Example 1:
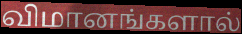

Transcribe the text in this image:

விமானங்களால்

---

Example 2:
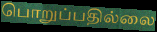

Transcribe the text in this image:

பொறுப்பதில்லை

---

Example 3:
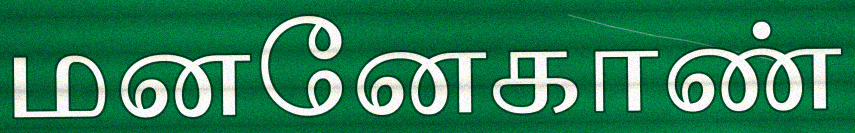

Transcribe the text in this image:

மனனேகாண்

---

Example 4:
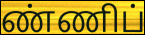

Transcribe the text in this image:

ண்ணிப்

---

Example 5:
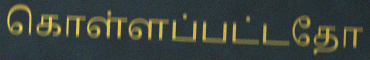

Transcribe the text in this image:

கொள்ளப்பட்டதோ